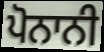
ਪੋਨਾਨੀ